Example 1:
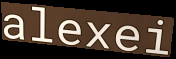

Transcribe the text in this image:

alexei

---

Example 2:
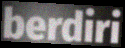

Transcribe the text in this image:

berdiri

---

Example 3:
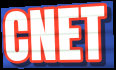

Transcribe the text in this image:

CNET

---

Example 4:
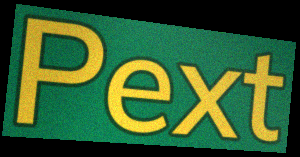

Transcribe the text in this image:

Pext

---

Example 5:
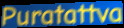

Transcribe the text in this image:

Puratattva